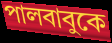
পালবাবুকে